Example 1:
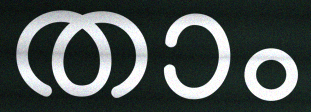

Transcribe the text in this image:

താം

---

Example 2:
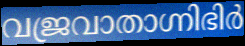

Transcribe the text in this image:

വജ്രവാതാഗ്നിഭിർ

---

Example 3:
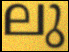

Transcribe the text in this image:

ലു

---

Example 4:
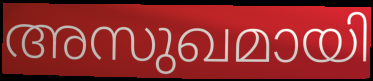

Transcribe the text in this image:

അസുഖമായി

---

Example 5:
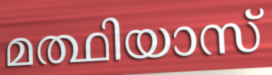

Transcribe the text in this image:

മത്ഥിയാസ്